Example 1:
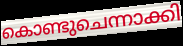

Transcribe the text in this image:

കൊണ്ടുചെന്നാക്കി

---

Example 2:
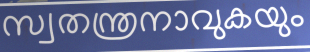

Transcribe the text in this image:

സ്വതന്ത്രനാവുകയും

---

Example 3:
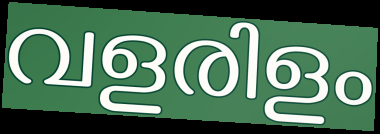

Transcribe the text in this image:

വളരിളം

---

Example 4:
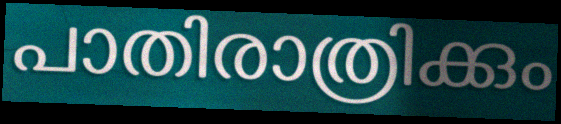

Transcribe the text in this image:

പാതിരാത്രിക്കും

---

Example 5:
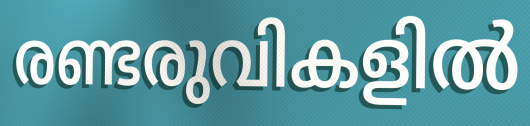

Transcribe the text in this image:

രണ്ടരുവികളിൽ